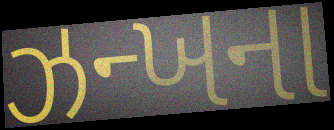
ઝન્ખના